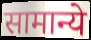
सामान्ये